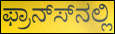
ಫ್ರಾನ್ಸ್‍ನಲ್ಲಿ